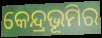
କେନ୍ଦ୍ରଭୂମିର